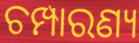
ଚମ୍ପାରଣ୍ୟ